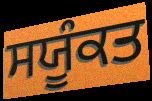
ਸਯੂੰਕਤ